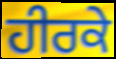
ਹੀਰਕੇ